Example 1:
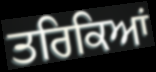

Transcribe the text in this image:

ਤਰਿਕਿਆਂ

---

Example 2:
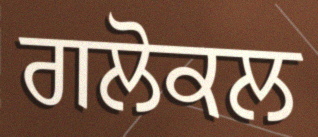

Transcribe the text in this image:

ਗਲੋਕਲ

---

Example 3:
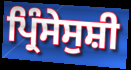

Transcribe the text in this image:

ਪ੍ਰਿੰਸੇਸੁਸ਼ੀ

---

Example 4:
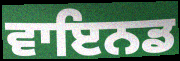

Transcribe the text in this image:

ਵਾਇਨਡ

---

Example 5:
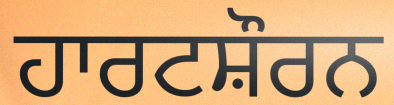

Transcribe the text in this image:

ਹਾਰਟਸ਼ੌਰਨ